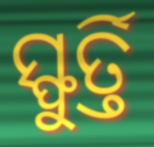
ସ୍ଫୁର୍ତ୍ତି